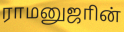
ராமனுஜரின்